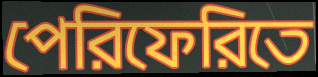
পেরিফেরিতে